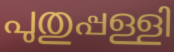
പുതുപ്പള്ളി